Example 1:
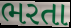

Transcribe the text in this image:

ભરતા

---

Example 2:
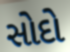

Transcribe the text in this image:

સોદો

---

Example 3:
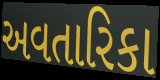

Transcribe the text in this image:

અવતારિકા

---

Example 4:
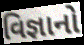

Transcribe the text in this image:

વિજ્ઞાનો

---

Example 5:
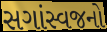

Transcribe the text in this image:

સગાંસ્વજનો